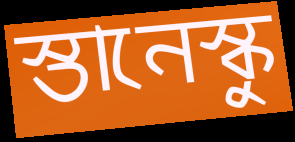
স্তানেস্কু